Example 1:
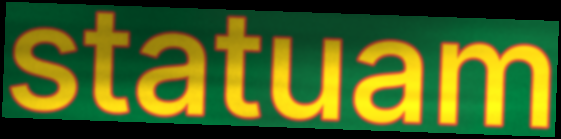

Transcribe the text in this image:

statuam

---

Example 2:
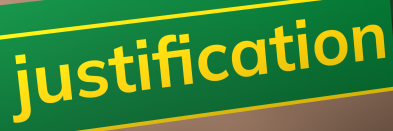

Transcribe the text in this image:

justification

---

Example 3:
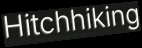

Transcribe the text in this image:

Hitchhiking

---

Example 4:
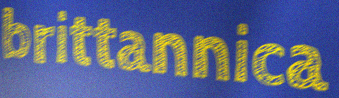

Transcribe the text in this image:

brittannica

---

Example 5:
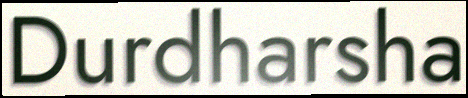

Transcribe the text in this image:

Durdharsha